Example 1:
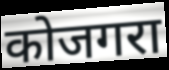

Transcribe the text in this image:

कोजगरा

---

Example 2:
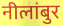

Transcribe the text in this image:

नीलांबुर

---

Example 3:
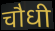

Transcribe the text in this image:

चौधी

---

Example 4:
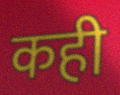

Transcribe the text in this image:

कही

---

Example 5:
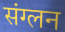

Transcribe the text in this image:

संग्लन